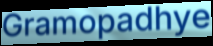
Gramopadhye